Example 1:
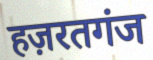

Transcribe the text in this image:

हज़रतगंज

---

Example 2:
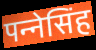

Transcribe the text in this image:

पन्नेसिंह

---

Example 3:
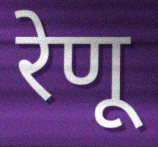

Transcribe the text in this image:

रेणू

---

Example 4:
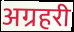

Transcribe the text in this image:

अग्रहरी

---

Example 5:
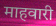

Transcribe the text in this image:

माहवारी